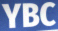
YBC